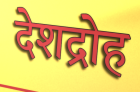
देशद्रोह